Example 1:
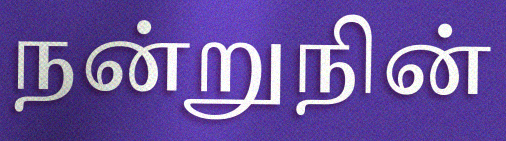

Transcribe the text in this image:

நன்றுநின்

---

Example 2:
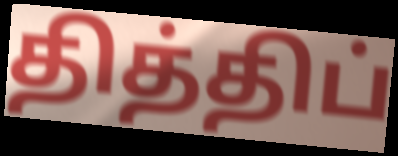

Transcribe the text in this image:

தித்திப்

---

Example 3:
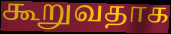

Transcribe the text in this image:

கூறுவதாக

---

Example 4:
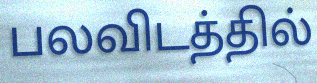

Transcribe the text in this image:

பலவிடத்தில்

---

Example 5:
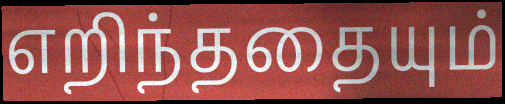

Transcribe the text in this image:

எறிந்ததையும்